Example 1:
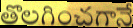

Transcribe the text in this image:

తొలగించగానే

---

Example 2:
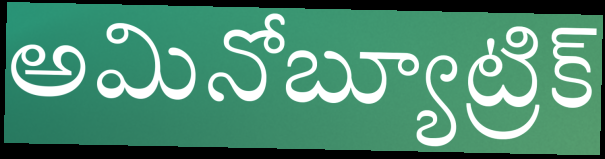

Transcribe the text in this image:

అమినోబ్యూట్రిక్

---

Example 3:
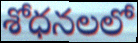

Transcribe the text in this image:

శోధనలలో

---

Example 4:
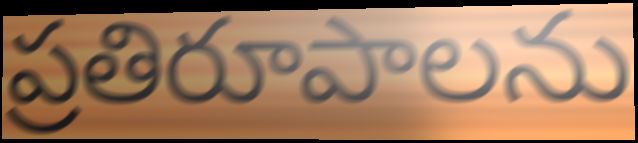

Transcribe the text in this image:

ప్రతిరూపాలను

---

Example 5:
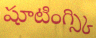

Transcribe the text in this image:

షూటింగ్స్కి